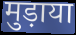
मुड़ाया